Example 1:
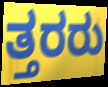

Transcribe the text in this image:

ತ್ತರರು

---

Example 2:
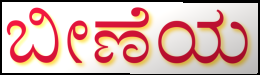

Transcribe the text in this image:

ಬೀಣೆಯ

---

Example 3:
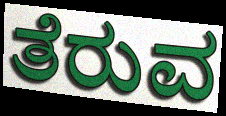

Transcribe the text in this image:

ತೆರುವ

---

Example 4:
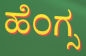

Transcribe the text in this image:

ಹೆಂಗ್ಸ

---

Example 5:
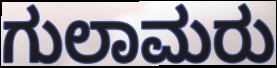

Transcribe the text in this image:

ಗುಲಾಮರು